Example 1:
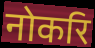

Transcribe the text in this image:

नोकरि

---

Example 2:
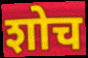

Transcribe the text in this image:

शोच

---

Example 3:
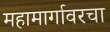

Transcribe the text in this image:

महामार्गावरचा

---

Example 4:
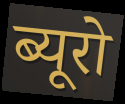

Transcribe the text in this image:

ब्यूरो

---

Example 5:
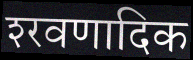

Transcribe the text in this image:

श्रवणादिक